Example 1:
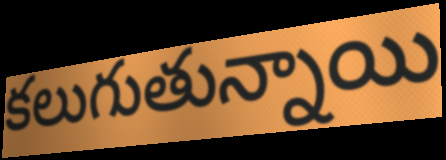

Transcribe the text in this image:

కలుగుతున్నాయి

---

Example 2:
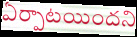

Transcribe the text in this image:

ఏర్పాటయిందని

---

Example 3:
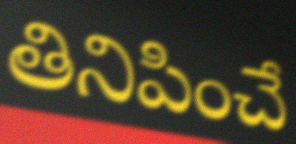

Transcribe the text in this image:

తినిపించే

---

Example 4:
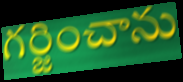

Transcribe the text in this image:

గర్జించాను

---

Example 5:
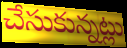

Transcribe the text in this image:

చేసుకున్నట్లు